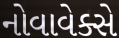
નોવાવેક્સે